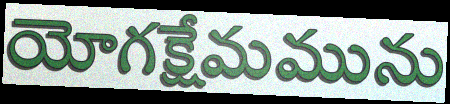
యోగక్షేమమును